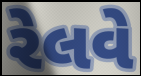
રેલવે